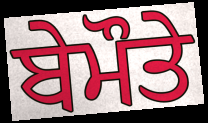
ਬੇਮੌਤੇ